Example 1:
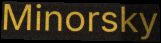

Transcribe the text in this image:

Minorsky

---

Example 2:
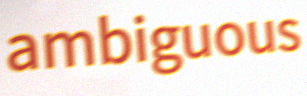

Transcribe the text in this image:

ambiguous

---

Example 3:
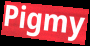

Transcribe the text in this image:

Pigmy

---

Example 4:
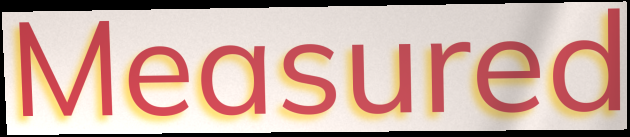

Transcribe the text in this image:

Measured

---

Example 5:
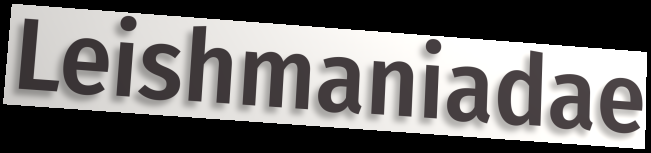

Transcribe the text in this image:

Leishmaniadae